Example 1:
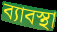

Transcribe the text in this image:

ব্যাবস্থা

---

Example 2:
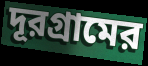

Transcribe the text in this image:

দূরগ্রামের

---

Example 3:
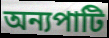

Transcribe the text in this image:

অন্যপাটি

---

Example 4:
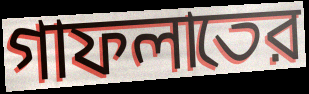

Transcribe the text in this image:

গাফলাতের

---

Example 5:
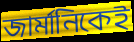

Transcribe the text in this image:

জার্মানিকেই